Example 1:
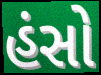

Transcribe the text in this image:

હંસો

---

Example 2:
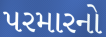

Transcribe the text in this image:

પરમારનો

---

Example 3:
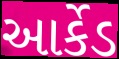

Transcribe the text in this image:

આર્કેડ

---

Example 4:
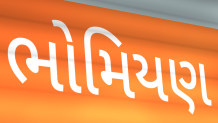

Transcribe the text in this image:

ભોમિયણ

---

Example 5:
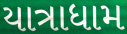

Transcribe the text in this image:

યાત્રાધામ